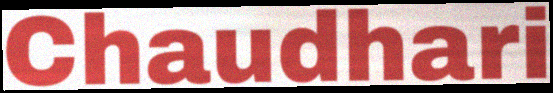
Chaudhari